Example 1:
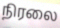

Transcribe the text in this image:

நிரலை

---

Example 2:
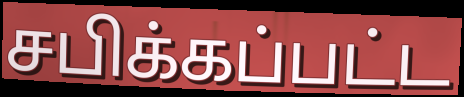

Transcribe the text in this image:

சபிக்கப்பட்ட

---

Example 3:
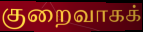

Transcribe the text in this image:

குறைவாகக்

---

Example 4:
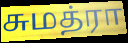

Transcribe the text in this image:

சுமத்ரா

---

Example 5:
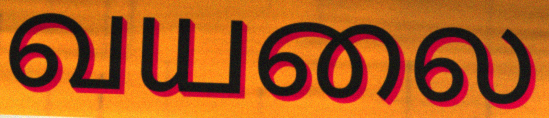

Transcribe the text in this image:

வயலை